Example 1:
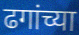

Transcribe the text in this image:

ढगांच्या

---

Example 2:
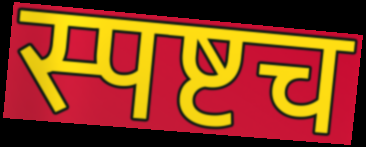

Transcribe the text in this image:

स्पष्टच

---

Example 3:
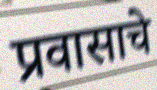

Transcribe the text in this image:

प्रवासाचे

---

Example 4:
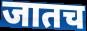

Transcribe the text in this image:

जातच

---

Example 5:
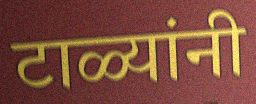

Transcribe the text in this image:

टाळ्यांनी